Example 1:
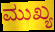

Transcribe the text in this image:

ಮುಖ್ಯ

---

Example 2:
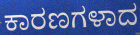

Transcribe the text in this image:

ಕಾರಣಗಳಾದ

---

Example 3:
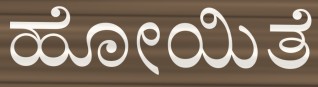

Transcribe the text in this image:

ಹೋಯಿತೆ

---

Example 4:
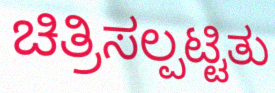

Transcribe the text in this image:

ಚಿತ್ರಿಸಲ್ಪಟ್ಟಿತು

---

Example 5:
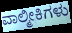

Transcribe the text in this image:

ವಾಲ್ಮೀಕಿಗಳು